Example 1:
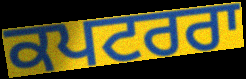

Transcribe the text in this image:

ਕਪਟਰਰਾ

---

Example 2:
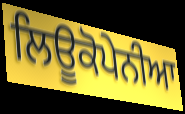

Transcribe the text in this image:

ਲਿਊਕੋਪੇਨੀਆ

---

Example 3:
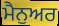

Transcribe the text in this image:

ਮੈਨੁਅਰ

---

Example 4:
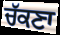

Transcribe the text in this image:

ਚੱਕਣਾ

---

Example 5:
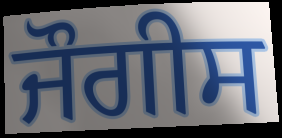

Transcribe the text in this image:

ਜੌਗੀਸ